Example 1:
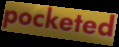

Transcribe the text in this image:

pocketed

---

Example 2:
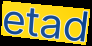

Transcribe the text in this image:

etad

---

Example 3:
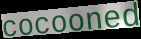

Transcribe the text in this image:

cocooned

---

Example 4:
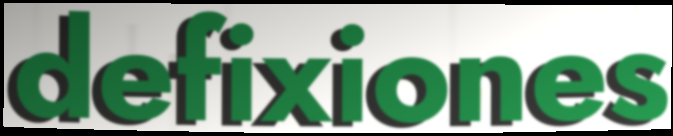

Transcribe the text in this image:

defixiones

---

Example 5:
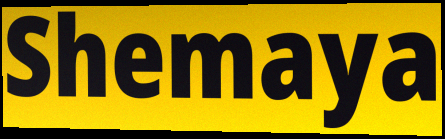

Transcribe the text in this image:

Shemaya